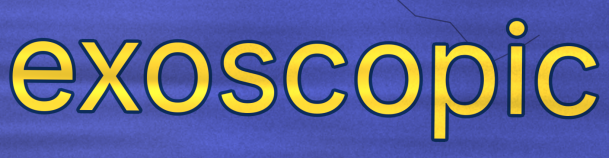
exoscopic